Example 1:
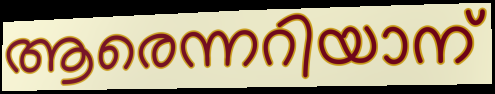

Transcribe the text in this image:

ആരെന്നറിയാന്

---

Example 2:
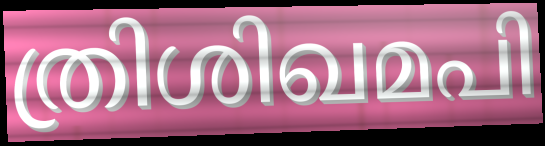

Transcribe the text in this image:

ത്രിശിഖമപി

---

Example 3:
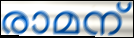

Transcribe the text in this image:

രാമന്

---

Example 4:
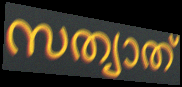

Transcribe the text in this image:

സത്യാത്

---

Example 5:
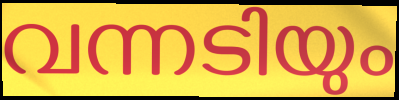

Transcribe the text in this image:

വന്നടിയും